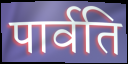
पार्वति